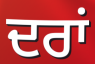
ਦਰਾਂ